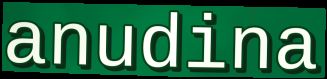
anudina